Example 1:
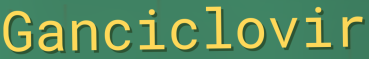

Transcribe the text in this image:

Ganciclovir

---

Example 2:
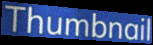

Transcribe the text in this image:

Thumbnail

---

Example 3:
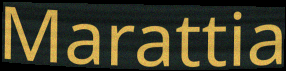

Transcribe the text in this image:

Marattia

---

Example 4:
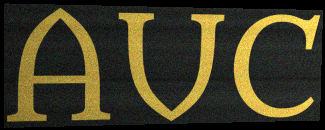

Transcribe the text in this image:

AUC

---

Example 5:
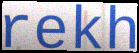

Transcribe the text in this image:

rekh